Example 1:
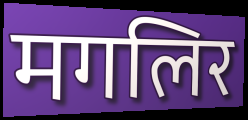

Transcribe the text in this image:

मगलिर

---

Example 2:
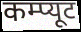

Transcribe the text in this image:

कम्प्यूट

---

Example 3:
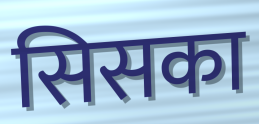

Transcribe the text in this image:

सिसका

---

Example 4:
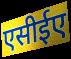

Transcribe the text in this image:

एसीईए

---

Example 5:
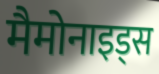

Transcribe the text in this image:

मैमोनाइड्स